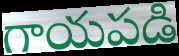
గాయపడి